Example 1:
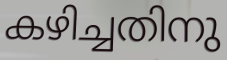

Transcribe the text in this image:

കഴിച്ചതിനു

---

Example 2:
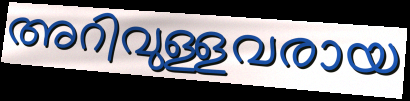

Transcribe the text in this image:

അറിവുള്ളവരായ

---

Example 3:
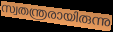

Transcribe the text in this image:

സ്വതന്ത്രരായിരുന്നു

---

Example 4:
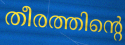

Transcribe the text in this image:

തീരത്തിന്റെ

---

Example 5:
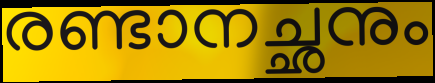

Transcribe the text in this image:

രണ്ടാനച്ഛനും